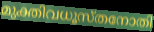
മുക്തിവധൂസ്തനോതി